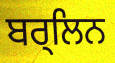
ਬਰ੍ਲਿਨ